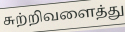
சுற்றிவளைத்து